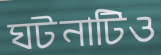
ঘটনাটিও